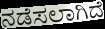
ನಡೆಸಲಾಗಿದೆ